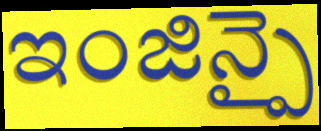
ఇంజిన్పై